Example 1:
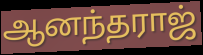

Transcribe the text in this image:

ஆனந்தராஜ்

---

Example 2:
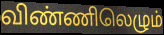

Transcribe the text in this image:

விண்ணிலெழும்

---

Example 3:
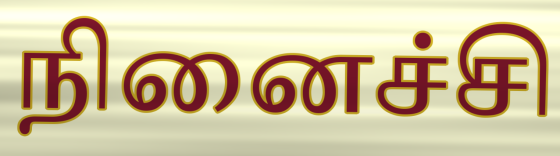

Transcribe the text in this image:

நினைச்சி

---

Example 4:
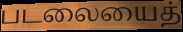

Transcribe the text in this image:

படலையைத்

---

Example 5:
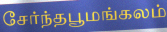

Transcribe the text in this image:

சேர்ந்தபூமங்கலம்